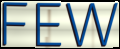
FEW